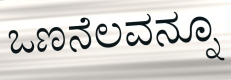
ಒಣನೆಲವನ್ನೂ